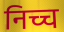
निच्च